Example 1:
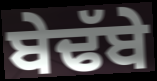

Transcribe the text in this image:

ਬੇਢੱਬੇ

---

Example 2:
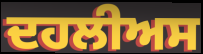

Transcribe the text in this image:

ਦਹਲੀਅਸ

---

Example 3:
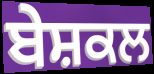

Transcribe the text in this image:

ਬੇਸ਼ਕਲ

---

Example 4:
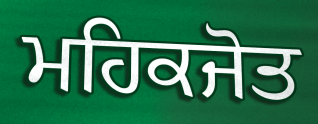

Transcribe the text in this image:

ਮਹਿਕਜੋਤ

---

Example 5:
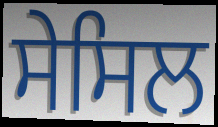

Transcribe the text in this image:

ਸੇਸਿਲ